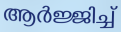
ആർജ്ജിച്ച്